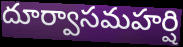
దూర్వాసమహర్షి